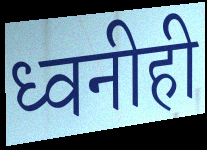
ध्वनीही